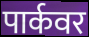
पार्कवर